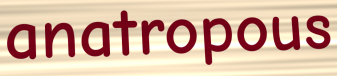
anatropous